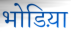
भोडिय़ा